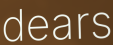
dears